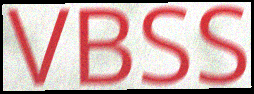
VBSS